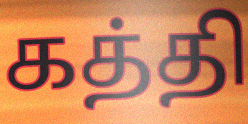
கத்தி